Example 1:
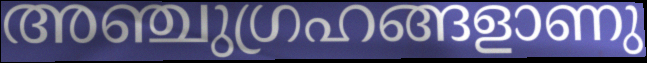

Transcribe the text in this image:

അഞ്ചുഗ്രഹങ്ങളാണു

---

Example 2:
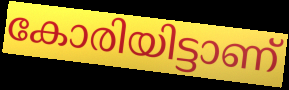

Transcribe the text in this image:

കോരിയിട്ടാണ്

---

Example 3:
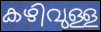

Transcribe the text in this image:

കഴിവുള്ള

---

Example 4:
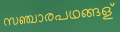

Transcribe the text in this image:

സഞ്ചാരപഥങ്ങള്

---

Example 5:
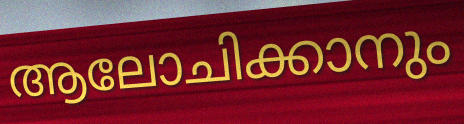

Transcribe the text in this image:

ആലോചിക്കാനും